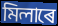
মিলাৰে